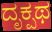
ದೃಕ್ಪಥ